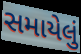
સમાયેલું